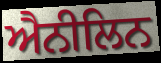
ਐਨੀਲਿਨ